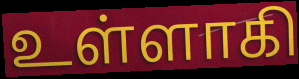
உள்ளாகி